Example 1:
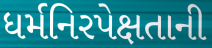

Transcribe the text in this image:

ધર્મનિરપેક્ષતાની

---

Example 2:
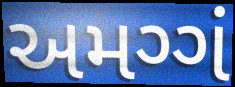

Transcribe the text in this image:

અમગ્ગં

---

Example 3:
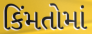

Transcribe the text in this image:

કિંમતોમાં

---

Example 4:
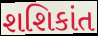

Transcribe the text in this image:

શશિકાંત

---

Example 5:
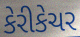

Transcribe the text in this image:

કેરીકેચર